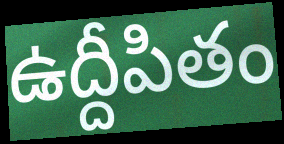
ఉద్దీపితం